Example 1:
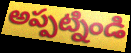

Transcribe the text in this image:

అప్పట్నిండి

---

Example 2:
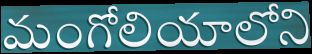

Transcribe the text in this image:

మంగోలియాలోని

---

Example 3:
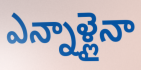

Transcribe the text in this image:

ఎన్నాళ్లైనా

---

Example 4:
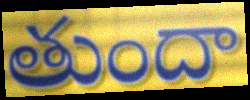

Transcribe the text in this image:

తుందా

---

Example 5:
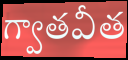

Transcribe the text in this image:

గ్వాతవీత